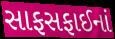
સાફસફાઈનાં